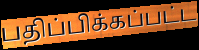
பதிப்பிக்கப்பட்ட